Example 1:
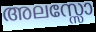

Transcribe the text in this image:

അലസ്സോ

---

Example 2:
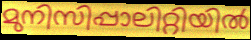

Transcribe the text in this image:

മുനിസിപ്പാലിറ്റിയിൽ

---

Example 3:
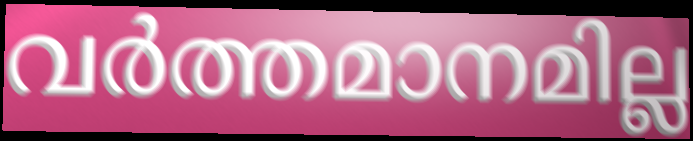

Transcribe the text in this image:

വർത്തമാനമില്ല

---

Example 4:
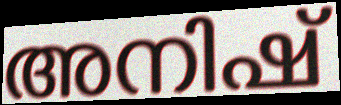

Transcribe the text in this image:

അനിഷ്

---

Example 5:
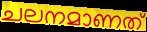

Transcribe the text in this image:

ചലനമാണത്